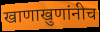
खाणाखुणांनीच